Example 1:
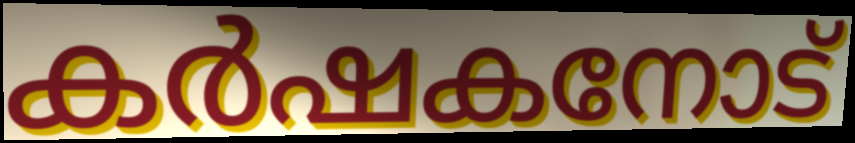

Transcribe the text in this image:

കർഷകനോട്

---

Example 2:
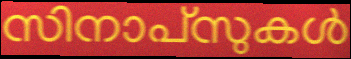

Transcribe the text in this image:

സിനാപ്സുകൾ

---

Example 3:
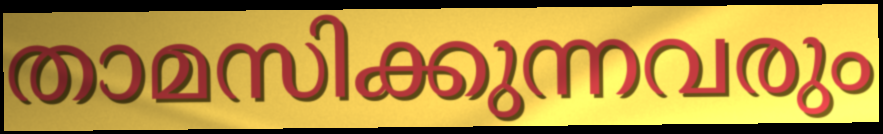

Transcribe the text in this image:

താമസിക്കുന്നവരും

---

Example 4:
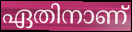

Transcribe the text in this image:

ഏതിനാണ്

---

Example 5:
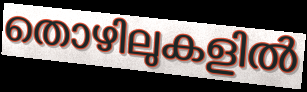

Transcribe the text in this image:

തൊഴിലുകളിൽ